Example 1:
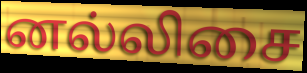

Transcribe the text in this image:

னல்லிசை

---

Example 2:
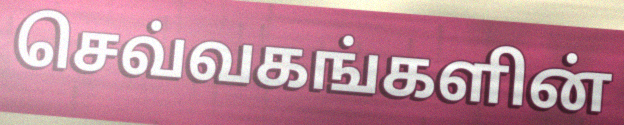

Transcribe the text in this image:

செவ்வகங்களின்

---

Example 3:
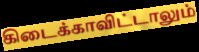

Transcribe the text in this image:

கிடைக்காவிட்டாலும்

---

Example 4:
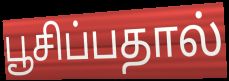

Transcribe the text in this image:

பூசிப்பதால்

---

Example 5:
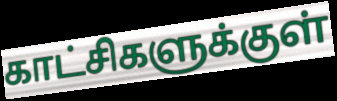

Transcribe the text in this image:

காட்சிகளுக்குள்